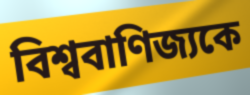
বিশ্ববাণিজ্যকে